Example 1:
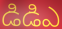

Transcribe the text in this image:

డిడిఎ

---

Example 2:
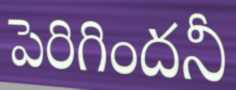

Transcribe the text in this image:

పెరిగిందనీ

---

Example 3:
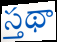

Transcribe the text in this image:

స్తథా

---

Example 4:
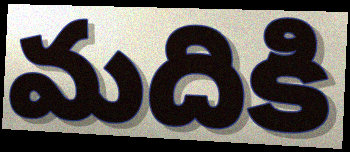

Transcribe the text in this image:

మదికి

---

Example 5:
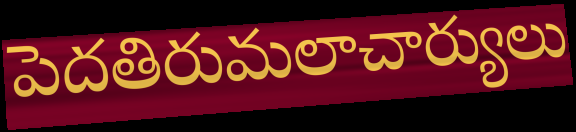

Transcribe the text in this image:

పెదతిరుమలాచార్యులు